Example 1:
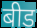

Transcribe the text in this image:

बीड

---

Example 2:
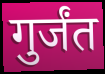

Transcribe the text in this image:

गुर्जंत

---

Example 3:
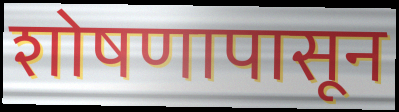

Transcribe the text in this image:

शोषणापासून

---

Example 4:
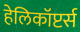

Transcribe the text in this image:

हेलिकॉप्टर्स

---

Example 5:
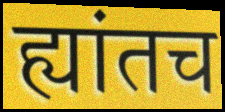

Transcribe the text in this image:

ह्यांतच